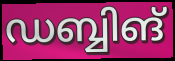
ഡബ്ബിങ്